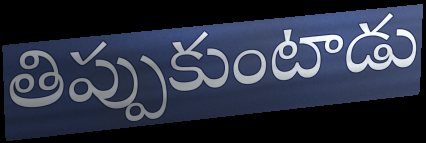
తిప్పుకుంటాడు